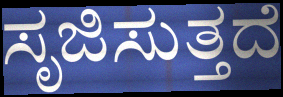
ಸೃಜಿಸುತ್ತದೆ